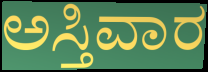
ಅಸ್ತಿವಾರ